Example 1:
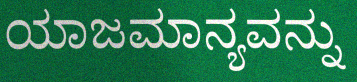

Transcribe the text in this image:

ಯಾಜಮಾನ್ಯವನ್ನು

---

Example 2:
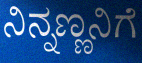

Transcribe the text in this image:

ನಿನ್ನಣ್ಣನಿಗೆ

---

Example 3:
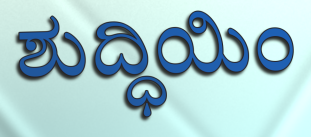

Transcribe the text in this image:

ಶುದ್ಧಿಯಿಂ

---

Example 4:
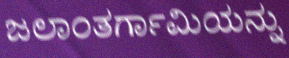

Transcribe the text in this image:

ಜಲಾಂತರ್ಗಾಮಿಯನ್ನು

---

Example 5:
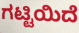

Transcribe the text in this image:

ಗಟ್ಟಿಯಿದೆ